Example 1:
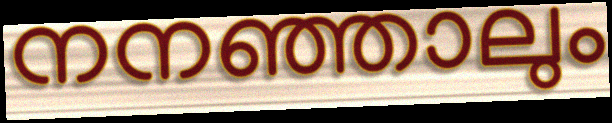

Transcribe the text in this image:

നനഞ്ഞാലും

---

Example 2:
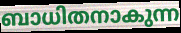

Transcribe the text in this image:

ബാധിതനാകുന്ന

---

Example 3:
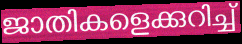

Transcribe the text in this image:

ജാതികളെക്കുറിച്ച്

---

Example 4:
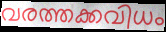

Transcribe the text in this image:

വരത്തക്കവിധം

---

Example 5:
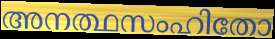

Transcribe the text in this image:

അനത്ഥസംഹിതോ